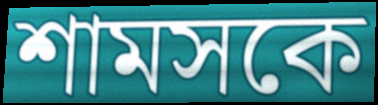
শামসকে